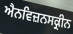
ਐਨਵਿਜ਼ਨਸਕ੍ਰੀਨ